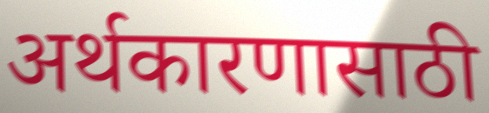
अर्थकारणासाठी